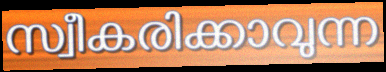
സ്വീകരിക്കാവുന്ന